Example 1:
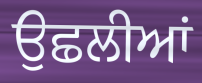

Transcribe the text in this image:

ਉਛਲੀਆਂ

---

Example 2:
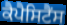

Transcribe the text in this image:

ਕੈਪੈਸਿਟੈਂਸ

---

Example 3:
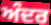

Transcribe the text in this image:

ਅੰਦਰ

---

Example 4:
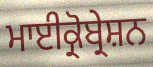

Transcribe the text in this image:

ਮਾਈਕ੍ਰੋਬ੍ਰੇਸ਼ਨ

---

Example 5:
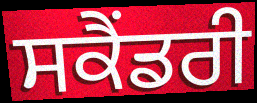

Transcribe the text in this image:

ਸਕੈੰਡਰੀ